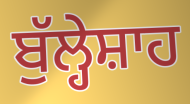
ਬੁੱਲ੍ਹੇਸ਼ਾਹ